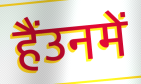
हैंउनमें